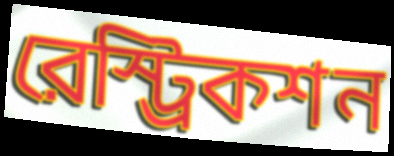
রেস্ট্রিকশন